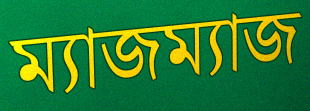
ম্যাজম্যাজ